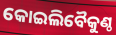
କୋଇଲିବୈକୁଣ୍ଠ